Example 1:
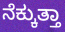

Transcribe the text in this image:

ನೆಕ್ಕುತ್ತಾ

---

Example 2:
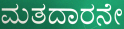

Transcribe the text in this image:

ಮತದಾರನೇ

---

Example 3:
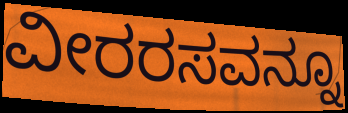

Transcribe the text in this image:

ವೀರರಸವನ್ನೂ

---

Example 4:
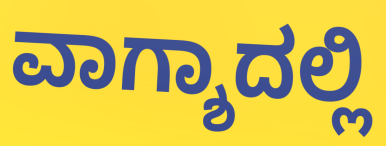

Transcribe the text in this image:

ವಾಗ್ಶಾದಲ್ಲಿ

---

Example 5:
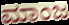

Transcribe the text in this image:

ಮಾಂಜ